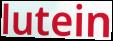
lutein